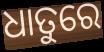
ଧାତୁରେ